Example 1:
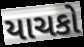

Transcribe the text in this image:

યાચકો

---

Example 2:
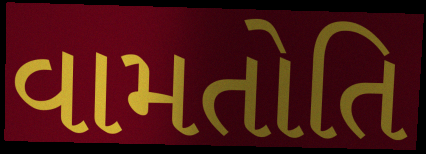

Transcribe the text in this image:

વામતોતિ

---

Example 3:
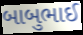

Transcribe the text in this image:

બાબુભાઈ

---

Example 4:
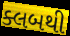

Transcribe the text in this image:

ક્લબથી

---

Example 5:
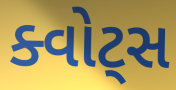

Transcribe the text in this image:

ક્વોટ્સ